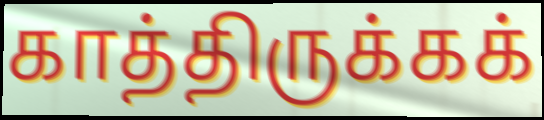
காத்திருக்கக்